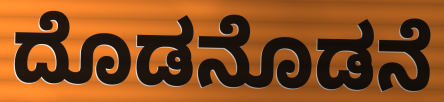
ದೊಡನೊಡನೆ